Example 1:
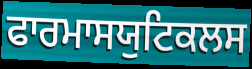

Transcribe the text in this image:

ਫਾਰਮਾਸਯੁਟਿਕਲਸ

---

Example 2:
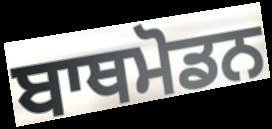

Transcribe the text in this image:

ਬਾਥਮੋਡਨ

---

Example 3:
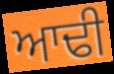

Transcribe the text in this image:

ਆਢੀ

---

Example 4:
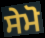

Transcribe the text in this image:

ਸੇਮੋ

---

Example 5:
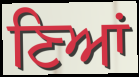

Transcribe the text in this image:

ਣਿਆਂ